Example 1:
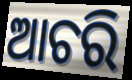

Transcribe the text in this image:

ଆଚରି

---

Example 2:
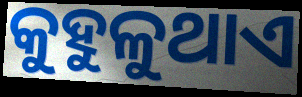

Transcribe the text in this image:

କୁହୁଳୁଥାଏ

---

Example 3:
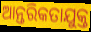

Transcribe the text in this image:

ଆନ୍ତରିକତାଯୁକ୍ତ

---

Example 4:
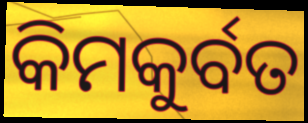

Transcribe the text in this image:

କିମକୁର୍ବତ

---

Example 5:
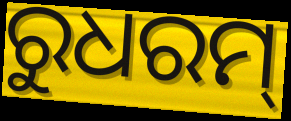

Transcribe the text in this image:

ରୁଧରମ୍